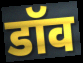
डॉव